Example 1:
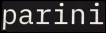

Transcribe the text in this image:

parini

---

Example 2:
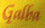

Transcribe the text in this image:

Galba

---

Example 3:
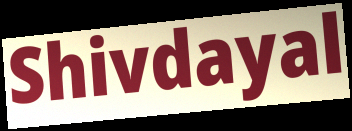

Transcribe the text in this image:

Shivdayal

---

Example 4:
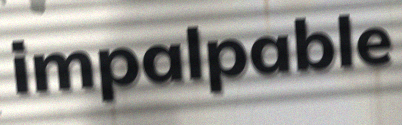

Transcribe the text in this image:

impalpable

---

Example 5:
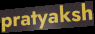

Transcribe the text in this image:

pratyaksh